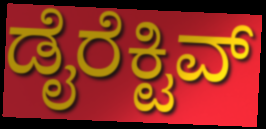
ಡೈರೆಕ್ಟಿವ್